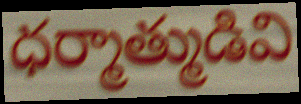
ధర్మాత్ముడివి